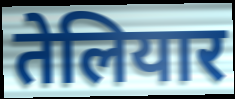
तेलियार